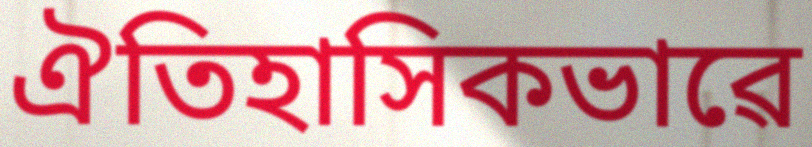
ঐতিহাসিকভাৱে